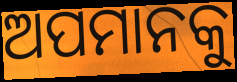
ଅପମାନକୁ